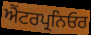
ਐਂਟਰਪ੍ਰਨਿਓਰ